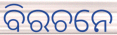
ବିରଚନେ